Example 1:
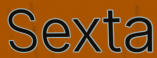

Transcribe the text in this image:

Sexta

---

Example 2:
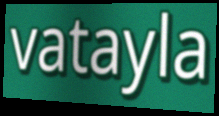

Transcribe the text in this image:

vatayla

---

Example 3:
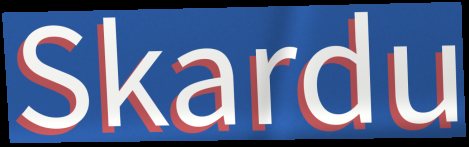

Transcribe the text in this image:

Skardu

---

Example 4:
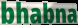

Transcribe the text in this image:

bhabna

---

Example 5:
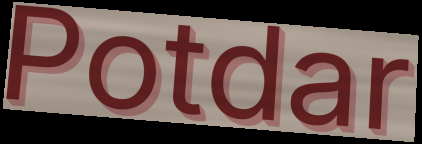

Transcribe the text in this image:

Potdar